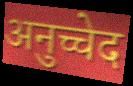
अनुच्चेद